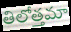
తిలోత్తమా